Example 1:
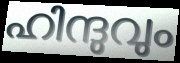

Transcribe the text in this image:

ഹിന്ദുവും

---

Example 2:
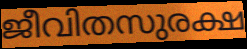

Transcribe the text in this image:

ജീവിതസുരക്ഷ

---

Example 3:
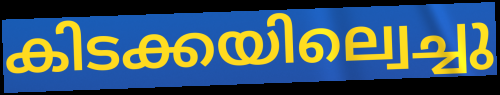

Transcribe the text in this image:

കിടക്കയില്വെച്ചു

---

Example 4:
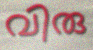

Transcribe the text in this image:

വിരു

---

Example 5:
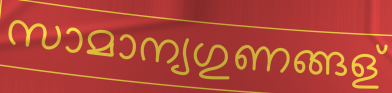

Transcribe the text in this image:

സാമാന്യഗുണങ്ങള്